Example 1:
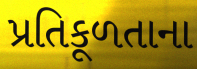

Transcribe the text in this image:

પ્રતિકૂળતાના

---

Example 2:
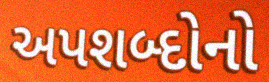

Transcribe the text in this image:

અપશબ્દોનો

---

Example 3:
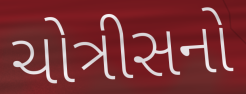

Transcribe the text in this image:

ચોત્રીસનો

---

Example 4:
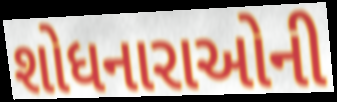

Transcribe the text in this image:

શોધનારાઓની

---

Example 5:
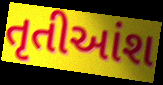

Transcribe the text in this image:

તૃતીઆંશ